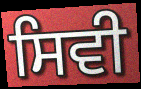
ਸਿਵੀ